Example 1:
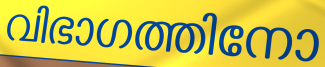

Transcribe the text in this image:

വിഭാഗത്തിനോ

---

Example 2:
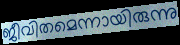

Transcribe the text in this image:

ജീവിതമെന്നായിരുന്നു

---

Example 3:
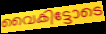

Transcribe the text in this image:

വൈകിട്ടോടെ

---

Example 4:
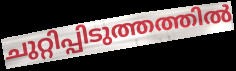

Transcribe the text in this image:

ചുറ്റിപ്പിടുത്തത്തിൽ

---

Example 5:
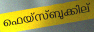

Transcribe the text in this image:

ഫെയ്സ്ബുക്കില്